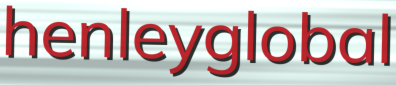
henleyglobal